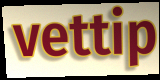
vettip